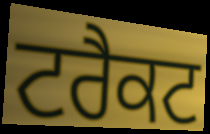
ਟਰੈਕਟ